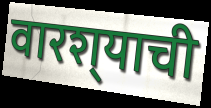
वारश्याची